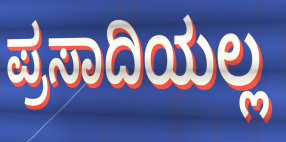
ಪ್ರಸಾದಿಯಲ್ಲ